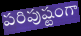
పరిపుష్టంగా